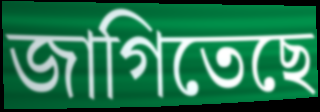
জাগিতেছে